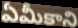
ఏమీకాని